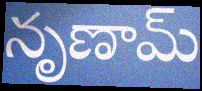
నృణామ్